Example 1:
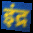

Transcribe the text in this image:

इंद्र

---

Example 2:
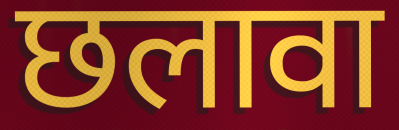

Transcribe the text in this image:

छलावा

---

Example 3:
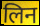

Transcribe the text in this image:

लिन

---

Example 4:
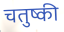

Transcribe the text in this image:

चतुष्की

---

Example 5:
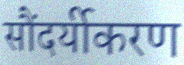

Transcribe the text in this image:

सौंदर्यीकरण